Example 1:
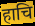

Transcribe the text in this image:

हाचि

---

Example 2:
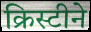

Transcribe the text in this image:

क्रिस्टीने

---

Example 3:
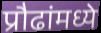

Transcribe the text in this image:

प्रौढांमध्ये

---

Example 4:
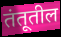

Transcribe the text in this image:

तंतूतील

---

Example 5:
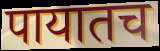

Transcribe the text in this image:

पायातच